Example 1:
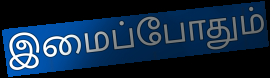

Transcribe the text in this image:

இமைப்போதும்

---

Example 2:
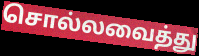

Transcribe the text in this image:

சொல்லவைத்து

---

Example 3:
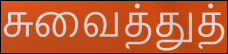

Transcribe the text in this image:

சுவைத்துத்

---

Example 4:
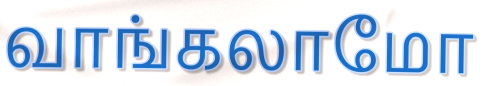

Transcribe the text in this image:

வாங்கலாமோ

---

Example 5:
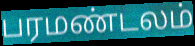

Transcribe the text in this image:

பரமண்டலம்